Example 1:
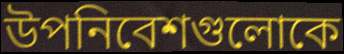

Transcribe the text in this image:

উপনিবেশগুলোকে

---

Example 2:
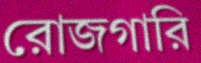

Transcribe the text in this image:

রোজগারি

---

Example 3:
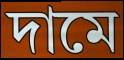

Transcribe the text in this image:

দামে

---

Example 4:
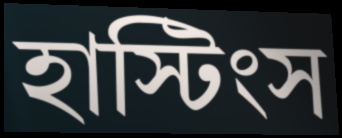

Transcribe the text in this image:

হাস্টিংস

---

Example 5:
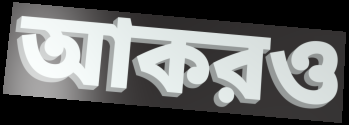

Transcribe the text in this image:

আকরও